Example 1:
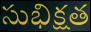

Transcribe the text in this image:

సుభిక్షత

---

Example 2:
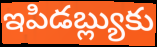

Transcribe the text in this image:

ఇపిడబ్ల్యుకు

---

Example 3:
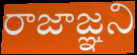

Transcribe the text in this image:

రాజాజ్ఞని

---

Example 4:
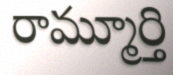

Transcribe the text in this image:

రామ్మూర్తి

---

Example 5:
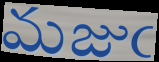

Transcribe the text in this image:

మజుఁ